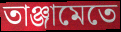
তাঞ্জামেতে